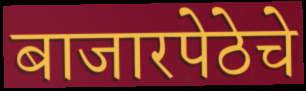
बाजारपेठेचे